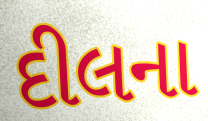
દીલના